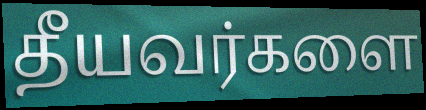
தீயவர்களை